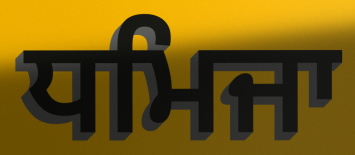
ਧਮਿਜਾ